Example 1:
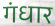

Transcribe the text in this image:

गंधार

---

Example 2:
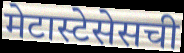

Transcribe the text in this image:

मेटास्टेसेसची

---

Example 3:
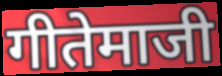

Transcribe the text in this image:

गीतेमाजी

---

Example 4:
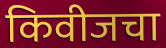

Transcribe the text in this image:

किवीजचा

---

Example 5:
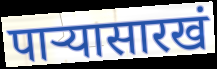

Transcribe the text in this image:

पाऱ्यासारखं